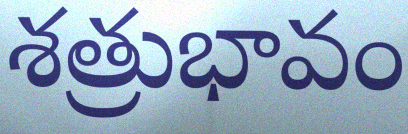
శత్రుభావం